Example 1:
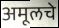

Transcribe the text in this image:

अमूलचे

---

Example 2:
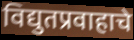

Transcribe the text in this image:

विद्युतप्रवाहाचे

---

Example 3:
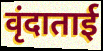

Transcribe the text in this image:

वृंदाताई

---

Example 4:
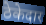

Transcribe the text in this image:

ठेकेदार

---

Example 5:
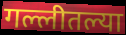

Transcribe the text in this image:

गल्लीतल्या